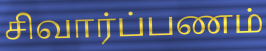
சிவார்ப்பணம்